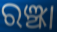
ରଞ୍ଝା